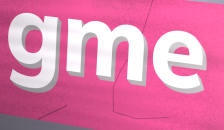
gme